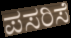
ಪಸರಿಸೆ